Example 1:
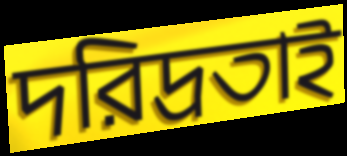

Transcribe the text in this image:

দরিদ্রতাই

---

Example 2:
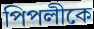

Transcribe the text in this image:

পিপলীকে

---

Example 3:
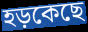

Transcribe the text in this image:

হড়কেছে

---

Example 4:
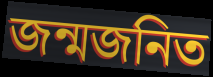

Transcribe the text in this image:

জন্মজনিত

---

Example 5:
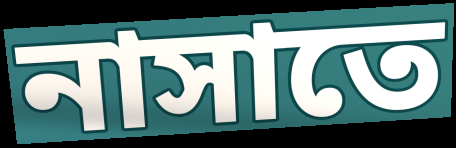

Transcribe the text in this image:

নাসাতে